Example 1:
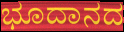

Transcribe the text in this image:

ಭೂದಾನದ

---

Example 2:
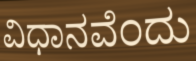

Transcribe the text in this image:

ವಿಧಾನವೆಂದು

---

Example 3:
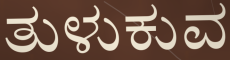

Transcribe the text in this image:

ತುಳುಕುವ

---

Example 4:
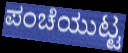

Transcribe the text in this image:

ಪಂಚೆಯುಟ್ಟ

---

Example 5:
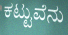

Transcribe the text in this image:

ಕಟ್ಟುವೆನು